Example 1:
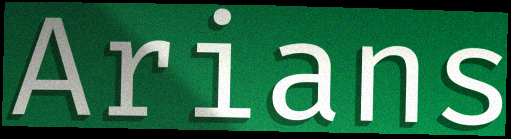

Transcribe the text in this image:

Arians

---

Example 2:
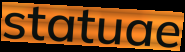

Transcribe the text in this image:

statuae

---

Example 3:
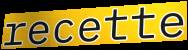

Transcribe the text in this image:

recette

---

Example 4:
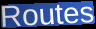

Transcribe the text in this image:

Routes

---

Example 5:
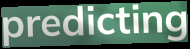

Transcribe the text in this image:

predicting